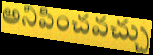
అనిపించవచ్చు